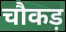
चौकड़